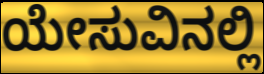
ಯೇಸುವಿನಲ್ಲಿ